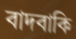
বাদবাকি